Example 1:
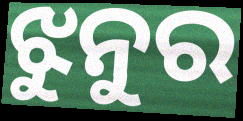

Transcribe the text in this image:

ଝୁନୁର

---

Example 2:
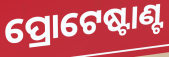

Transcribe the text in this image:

ପ୍ରୋଟେଷ୍ଟାଣ୍ଟ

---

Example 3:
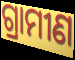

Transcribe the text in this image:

ଗ୍ରାମୀଣ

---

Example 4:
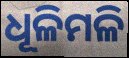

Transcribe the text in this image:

ଧୂଳିମଳି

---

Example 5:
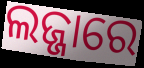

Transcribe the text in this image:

ଲଜ୍ଜାରେ